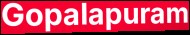
Gopalapuram